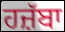
ਹਜ਼ੱਬਾ